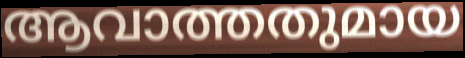
ആവാത്തതുമായ